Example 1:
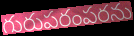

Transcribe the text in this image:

గురుపరంపరను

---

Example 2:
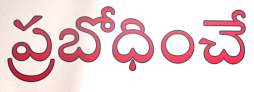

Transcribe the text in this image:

ప్రబోధించే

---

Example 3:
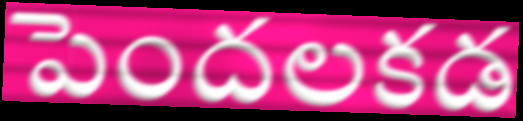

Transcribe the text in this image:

పెందలకడ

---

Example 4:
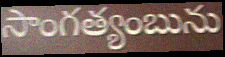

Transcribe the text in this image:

సాంగత్యంబును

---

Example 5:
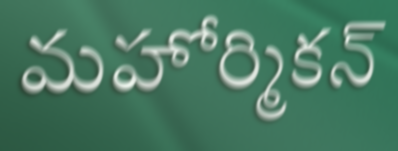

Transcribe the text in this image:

మహోర్మికన్